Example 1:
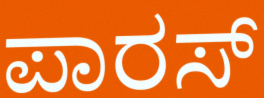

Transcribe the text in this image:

ಪಾರಸ್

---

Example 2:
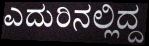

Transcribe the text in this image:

ಎದುರಿನಲ್ಲಿದ್ದ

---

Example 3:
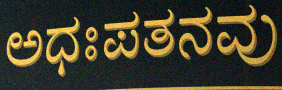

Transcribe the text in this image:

ಅಧಃಪತನವು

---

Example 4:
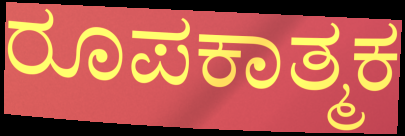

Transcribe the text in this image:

ರೂಪಕಾತ್ಮಕ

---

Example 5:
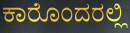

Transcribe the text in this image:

ಕಾರೊಂದರಲ್ಲಿ